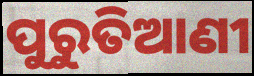
ପୁରୁତିଆଣୀ